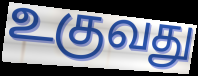
உகுவது